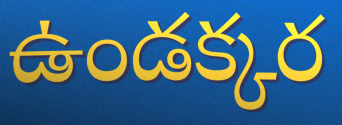
ఉండక్కర